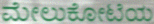
ಮೇಲುಕೋಟೆಯ